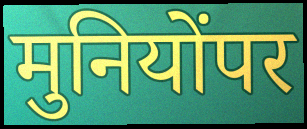
मुनियोंपर